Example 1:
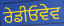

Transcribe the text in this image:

ਰੇਡੀਓਵੇਵ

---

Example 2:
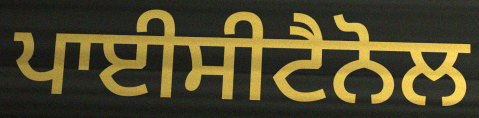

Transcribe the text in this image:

ਪਾਈਸੀਟੈਨੋਲ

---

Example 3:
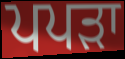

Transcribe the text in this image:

ਪਪੜਾ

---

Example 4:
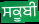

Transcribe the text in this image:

ਸਕੂਬੀ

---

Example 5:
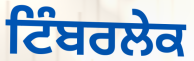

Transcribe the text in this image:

ਟਿੰਬਰਲੇਕ